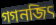
গগনজিৎ